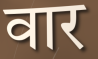
वार